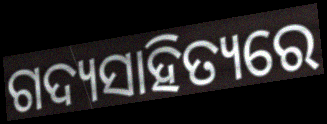
ଗଦ୍ୟସାହିତ୍ୟରେ